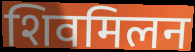
शिवमिलन